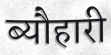
ब्यौहारी